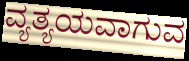
ವ್ಯತ್ಯಯವಾಗುವ